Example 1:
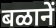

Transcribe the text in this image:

बळानें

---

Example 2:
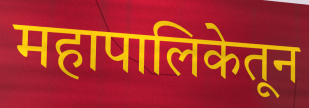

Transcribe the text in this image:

महापालिकेतून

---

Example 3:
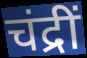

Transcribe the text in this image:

चंद्रीं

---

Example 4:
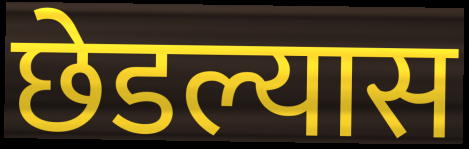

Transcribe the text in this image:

छेडल्यास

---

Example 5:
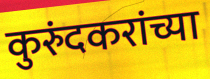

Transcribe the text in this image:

कुरुंदकरांच्या